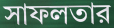
সাফলতার